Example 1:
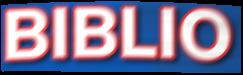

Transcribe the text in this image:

BIBLIO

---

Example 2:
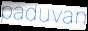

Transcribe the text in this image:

paduvan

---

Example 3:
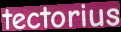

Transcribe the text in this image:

tectorius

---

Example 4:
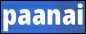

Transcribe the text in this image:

paanai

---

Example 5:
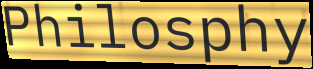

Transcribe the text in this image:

Philosphy